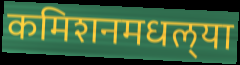
कमिशनमधल्या